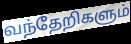
வந்தேறிகளும்